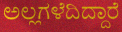
ಅಲ್ಲಗಳೆದಿದ್ದಾರೆ